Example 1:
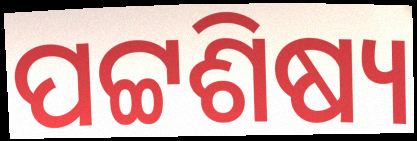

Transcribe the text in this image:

ପଟ୍ଟଶିଷ୍ୟ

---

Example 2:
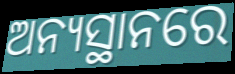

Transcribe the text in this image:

ଅନ୍ୟସ୍ଥାନରେ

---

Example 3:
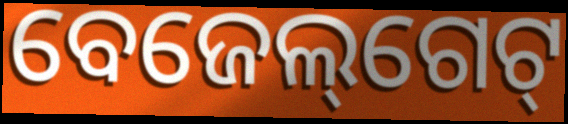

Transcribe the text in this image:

ବେଜେଲ୍‌ଗେଟ୍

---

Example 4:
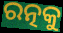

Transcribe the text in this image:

ରତ୍ନକୁ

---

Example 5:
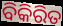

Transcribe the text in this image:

ବିକିରିତ